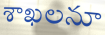
శాఖలనూ